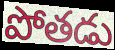
పోతడు